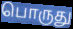
பொருது